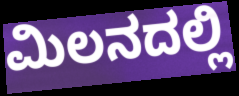
ಮಿಲನದಲ್ಲಿ